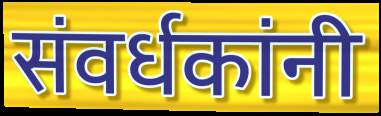
संवर्धकांनी